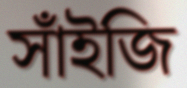
সাঁইজি